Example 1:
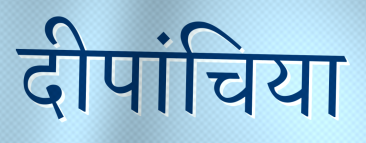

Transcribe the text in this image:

दीपांचिया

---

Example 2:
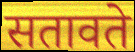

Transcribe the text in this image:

सतावते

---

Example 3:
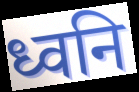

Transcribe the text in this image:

ध्वनि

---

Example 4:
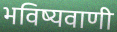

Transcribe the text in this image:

भविष्यवाणी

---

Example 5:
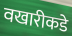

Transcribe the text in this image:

वखारीकडे